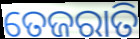
ତେଜରାତି